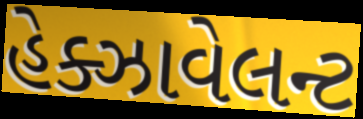
હેક્ઝાવેલન્ટ